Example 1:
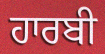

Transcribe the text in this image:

ਹਾਰਬੀ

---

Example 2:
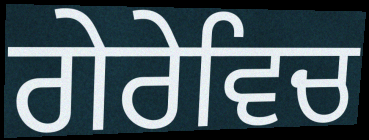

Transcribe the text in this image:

ਗੇਰੇਵਿਚ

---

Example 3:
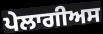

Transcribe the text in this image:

ਪੇਲਾਗੀਅਸ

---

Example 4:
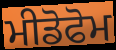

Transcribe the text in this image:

ਮੀਡੋਫੋਮ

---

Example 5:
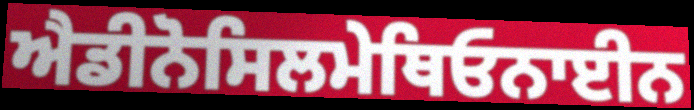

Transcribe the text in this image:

ਐਡੀਨੋਸਿਲਮੇਥਿਓਨਾਈਨ